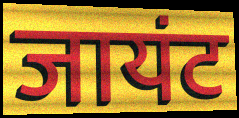
जायंट